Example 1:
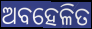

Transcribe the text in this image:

ଅବହେଳିତ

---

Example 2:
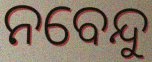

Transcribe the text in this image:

ନବେନ୍ଦୁ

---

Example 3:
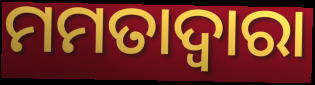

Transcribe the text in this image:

ମମତାଦ୍ୱାରା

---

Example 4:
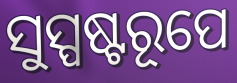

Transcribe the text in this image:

ସୁସ୍ପଷ୍ଟରୂପେ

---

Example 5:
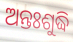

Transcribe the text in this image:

ଅନ୍ତଃଶୁଦ୍ଧି